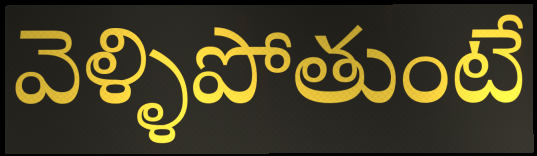
వెళ్ళిపోతుంటే